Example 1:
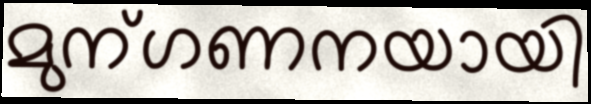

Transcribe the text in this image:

മുന്ഗണനയായി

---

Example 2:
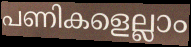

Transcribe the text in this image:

പണികളെല്ലാം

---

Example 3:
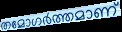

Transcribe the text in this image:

തമോഗർത്തമാണ്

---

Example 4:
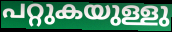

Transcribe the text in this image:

പറ്റുകയുള്ളു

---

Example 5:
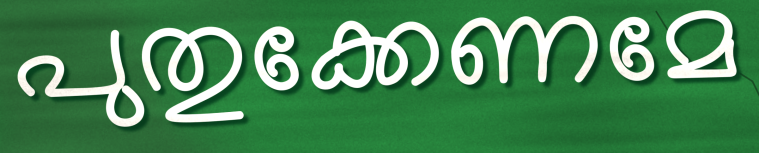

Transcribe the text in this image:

പുതുക്കേണമേ